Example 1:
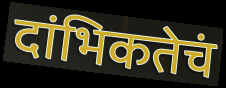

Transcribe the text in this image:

दांभिकतेचं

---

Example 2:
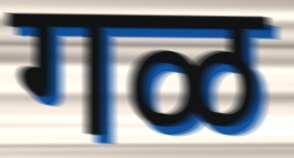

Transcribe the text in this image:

गळ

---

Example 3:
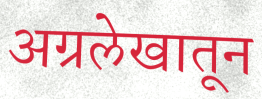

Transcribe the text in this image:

अग्रलेखातून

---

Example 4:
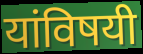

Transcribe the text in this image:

यांविषयी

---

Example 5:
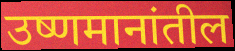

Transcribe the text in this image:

उष्णमानांतील